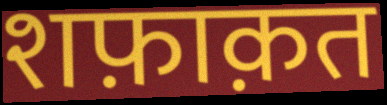
शफ़ाक़त